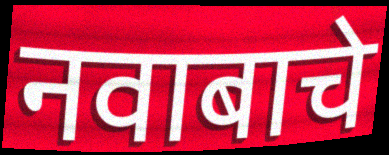
नवाबाचे